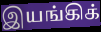
இயங்கிக்